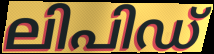
ലിപിഡ്